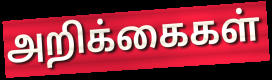
அறிக்கைகள்